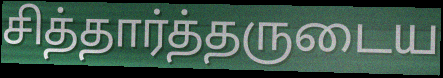
சித்தார்த்தருடைய